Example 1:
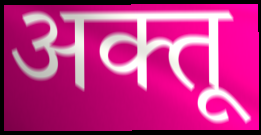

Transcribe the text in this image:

अक्तू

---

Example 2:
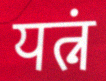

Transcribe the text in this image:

यत्नं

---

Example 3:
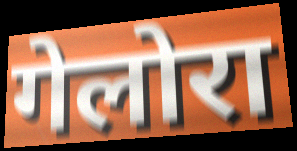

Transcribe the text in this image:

गेलोरा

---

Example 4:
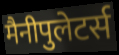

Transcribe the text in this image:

मैनीपुलेटर्स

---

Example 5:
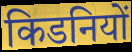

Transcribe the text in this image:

किडनियों